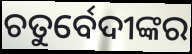
ଚତୁର୍ବେଦୀଙ୍କର